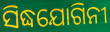
ସିଦ୍ଧଯୋଗିନୀ